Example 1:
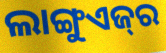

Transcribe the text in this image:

ଲାଙ୍ଗୁଏଜ୍‌ର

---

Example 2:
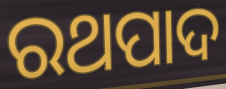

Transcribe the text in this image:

ରଥପାଦ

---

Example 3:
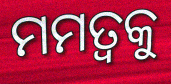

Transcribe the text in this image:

ମମତ୍ୱକୁ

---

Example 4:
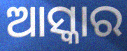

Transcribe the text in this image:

ଆସ୍କାର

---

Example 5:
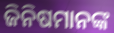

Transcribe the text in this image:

ଜିନିଷମାନଙ୍କ